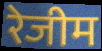
रेजीम